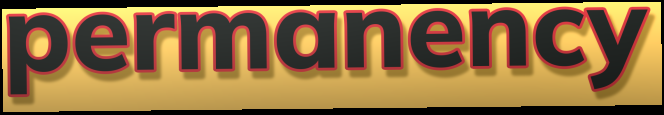
permanency